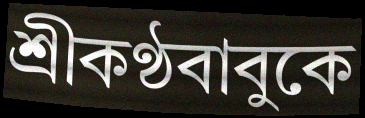
শ্রীকণ্ঠবাবুকে